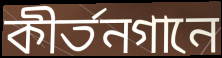
কীর্তনগানে